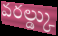
వరల్డ్కు